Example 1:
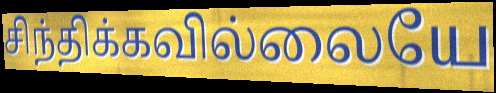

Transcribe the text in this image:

சிந்திக்கவில்லையே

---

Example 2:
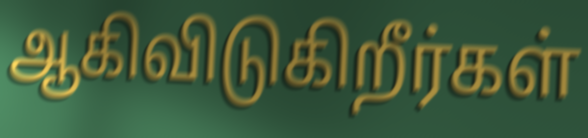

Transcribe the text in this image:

ஆகிவிடுகிறீர்கள்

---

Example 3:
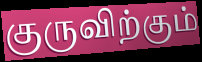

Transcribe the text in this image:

குருவிற்கும்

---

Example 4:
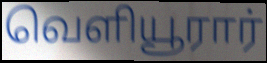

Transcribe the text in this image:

வெளியூரார்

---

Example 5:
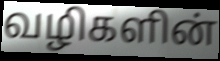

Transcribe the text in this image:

வழிகளின்